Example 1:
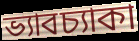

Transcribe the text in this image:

ভ্যাবচ্যাকা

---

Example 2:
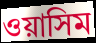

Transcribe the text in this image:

ওয়াসিম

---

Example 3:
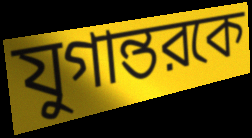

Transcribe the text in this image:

যুগান্তরকে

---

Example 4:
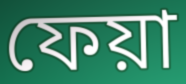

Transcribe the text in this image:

ফেয়া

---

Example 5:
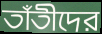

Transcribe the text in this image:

তাঁতীদের